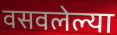
वसवलेल्या